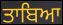
ਤਾਬਿਆ